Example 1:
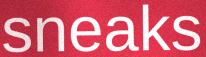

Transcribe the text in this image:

sneaks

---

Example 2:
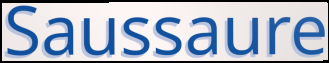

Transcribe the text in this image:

Saussaure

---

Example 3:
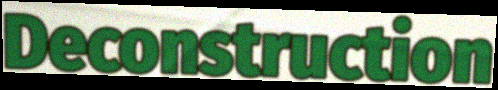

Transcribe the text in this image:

Deconstruction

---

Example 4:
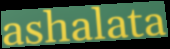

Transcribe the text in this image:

ashalata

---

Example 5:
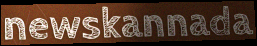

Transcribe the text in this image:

newskannada